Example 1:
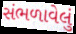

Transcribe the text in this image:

સંભળાવેલું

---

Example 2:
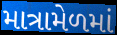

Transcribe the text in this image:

માત્રામેળમાં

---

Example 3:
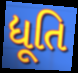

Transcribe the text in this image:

દ્યૂતિ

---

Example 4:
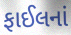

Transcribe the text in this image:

ફાઈલનાં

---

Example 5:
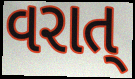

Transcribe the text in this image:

વરાત્